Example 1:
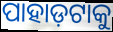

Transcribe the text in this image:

ପାହାଡ଼ଟାକୁ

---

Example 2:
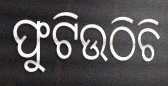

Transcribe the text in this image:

ଫୁଟିଉଠିଚି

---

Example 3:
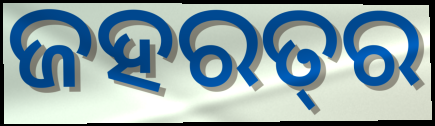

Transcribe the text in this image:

ଜହରତ୍‌ର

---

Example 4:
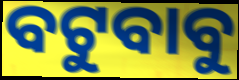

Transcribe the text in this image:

ବଟୁବାବୁ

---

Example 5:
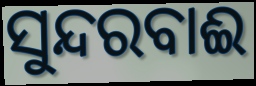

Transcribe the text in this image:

ସୁନ୍ଦରବାଈ